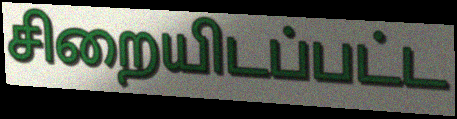
சிறையிடப்பட்ட